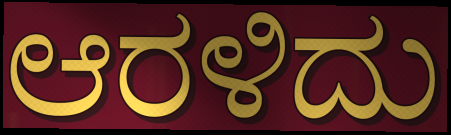
ಆರಳಿದು